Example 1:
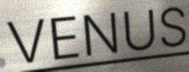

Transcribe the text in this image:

VENUS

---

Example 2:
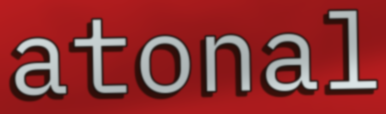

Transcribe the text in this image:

atonal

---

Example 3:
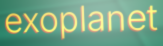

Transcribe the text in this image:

exoplanet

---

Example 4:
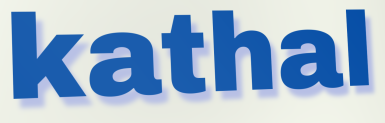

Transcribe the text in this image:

kathal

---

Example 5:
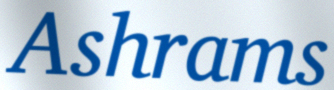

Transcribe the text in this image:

Ashrams